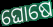
ଘୋଷେ